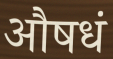
औषधं